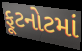
ફૂટનોટમાં